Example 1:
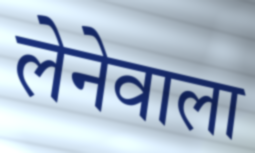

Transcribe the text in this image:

लेनेवाला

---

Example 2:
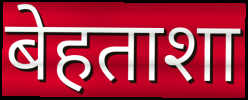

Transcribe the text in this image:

बेहताशा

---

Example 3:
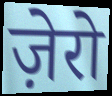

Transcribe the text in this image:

ज़ेरो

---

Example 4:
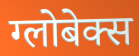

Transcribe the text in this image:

ग्लोबेक्स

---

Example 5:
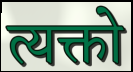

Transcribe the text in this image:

त्यक्तो